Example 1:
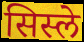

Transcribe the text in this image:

सिस्ले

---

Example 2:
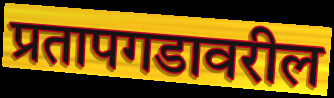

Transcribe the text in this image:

प्रतापगडावरील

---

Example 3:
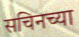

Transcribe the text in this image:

सचिनच्या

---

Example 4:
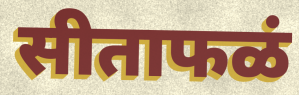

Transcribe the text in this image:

सीताफळं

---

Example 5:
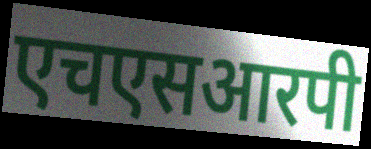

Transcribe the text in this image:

एचएसआरपी